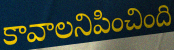
కావాలనిపించింది